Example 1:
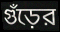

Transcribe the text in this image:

গুঁড়ের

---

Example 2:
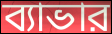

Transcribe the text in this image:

ব্যাভার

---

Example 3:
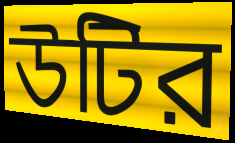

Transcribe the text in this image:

উটির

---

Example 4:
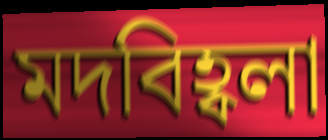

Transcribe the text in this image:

মদবিহ্বলা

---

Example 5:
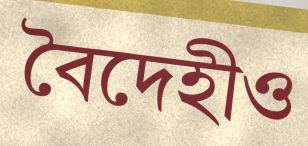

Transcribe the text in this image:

বৈদেহীও